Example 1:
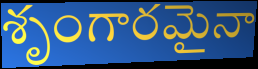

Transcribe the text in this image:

శృంగారమైనా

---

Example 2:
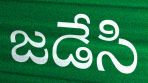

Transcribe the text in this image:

జడేసి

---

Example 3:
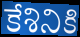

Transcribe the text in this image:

కేశినికి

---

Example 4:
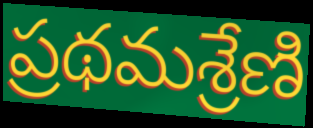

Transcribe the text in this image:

ప్రథమశ్రేణి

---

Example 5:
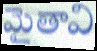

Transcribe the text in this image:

మైతావి